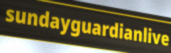
sundayguardianlive